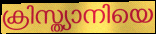
ക്രിസ്ത്യാനിയെ